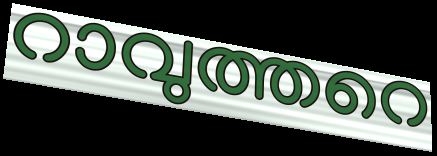
റാവുത്തറെ